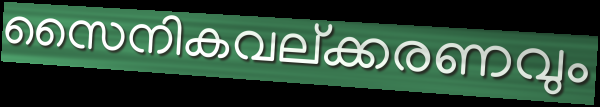
സൈനികവല്ക്കരണവും